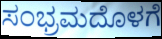
ಸಂಭ್ರಮದೊಳಗೆ